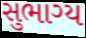
સુભાગ્ય